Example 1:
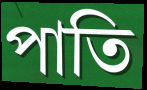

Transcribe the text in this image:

পাতি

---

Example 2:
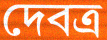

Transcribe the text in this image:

দেবত্র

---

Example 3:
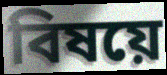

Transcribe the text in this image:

বিষয়ে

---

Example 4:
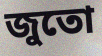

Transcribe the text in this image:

জুতো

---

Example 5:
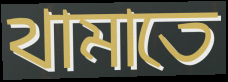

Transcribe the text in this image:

থামাতে